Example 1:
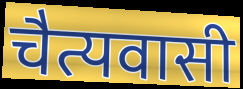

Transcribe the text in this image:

चैत्यवासी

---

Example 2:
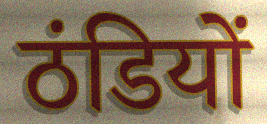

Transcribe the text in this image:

ठंडियों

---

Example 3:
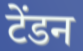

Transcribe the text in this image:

टेंडन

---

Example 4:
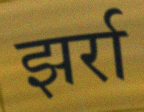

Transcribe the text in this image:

झर्रा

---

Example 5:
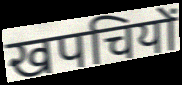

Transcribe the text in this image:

खपचियों